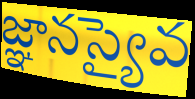
జ్ఞానస్యైవ